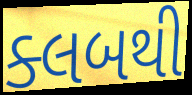
ક્લબથી